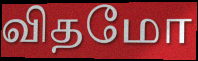
விதமோ